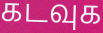
கடவுக